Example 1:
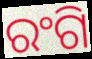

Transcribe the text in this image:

ରଂଗି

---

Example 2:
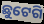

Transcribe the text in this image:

ଛୁଟେଗି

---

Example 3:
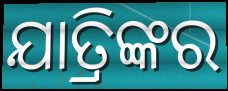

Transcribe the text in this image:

ଯାତ୍ରିଙ୍କର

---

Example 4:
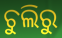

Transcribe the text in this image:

ଚୁଲିରୁ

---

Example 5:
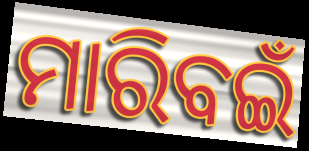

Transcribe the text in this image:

ମାରିବଇଁ